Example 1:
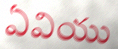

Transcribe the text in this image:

ఏవియు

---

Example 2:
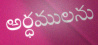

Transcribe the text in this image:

అర్ధములను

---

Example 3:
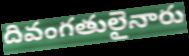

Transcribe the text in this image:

దివంగతులైనారు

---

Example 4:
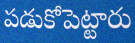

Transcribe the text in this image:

పడుకోపెట్టారు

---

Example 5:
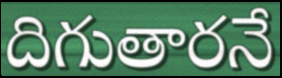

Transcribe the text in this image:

దిగుతారనే